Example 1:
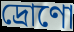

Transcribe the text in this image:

দ্রোণো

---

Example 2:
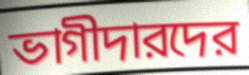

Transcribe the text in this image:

ভাগীদারদের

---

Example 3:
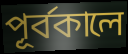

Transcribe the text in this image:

পূর্বকালে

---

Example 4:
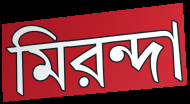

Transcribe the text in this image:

মিরন্দা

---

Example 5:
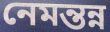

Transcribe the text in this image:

নেমন্তন্ন